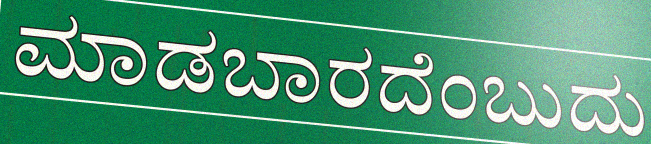
ಮಾಡಬಾರದೆಂಬುದು